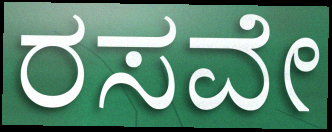
ರಸವೇ